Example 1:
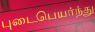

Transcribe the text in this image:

புடைபெயர்ந்து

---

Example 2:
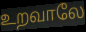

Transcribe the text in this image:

உறவாலே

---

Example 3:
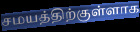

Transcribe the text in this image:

சமயத்திற்குள்ளாக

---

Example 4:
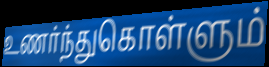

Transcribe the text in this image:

உணர்ந்துகொள்ளும்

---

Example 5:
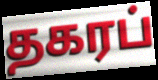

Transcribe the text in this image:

தகரப்